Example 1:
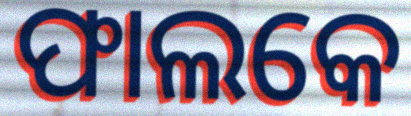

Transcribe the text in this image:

ଫାଲକେ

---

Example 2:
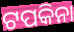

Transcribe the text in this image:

ଟପକିନା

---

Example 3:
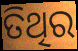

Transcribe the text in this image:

ତିଥିର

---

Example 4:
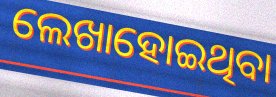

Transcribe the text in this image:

ଲେଖାହୋଇଥିବା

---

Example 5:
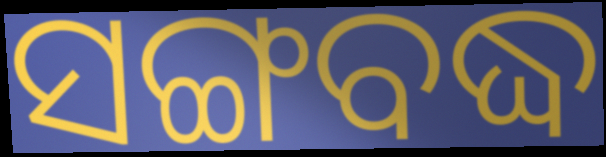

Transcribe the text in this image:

ସଙ୍ଗବଦ୍ଧ